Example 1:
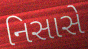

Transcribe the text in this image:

નિસાસે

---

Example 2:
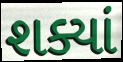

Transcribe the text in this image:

શક્યાં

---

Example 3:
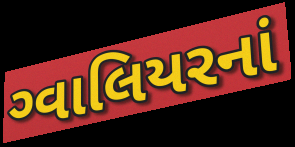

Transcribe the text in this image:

ગ્વાલિયરનાં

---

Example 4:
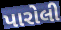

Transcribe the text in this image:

પારોલી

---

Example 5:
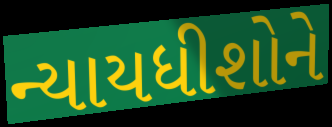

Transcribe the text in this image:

ન્યાયધીશોને